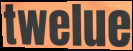
twelue